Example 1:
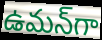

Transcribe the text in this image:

ఉమన్‌గా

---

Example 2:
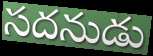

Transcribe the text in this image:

సదనుడు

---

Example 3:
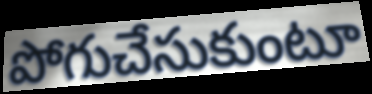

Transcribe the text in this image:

పోగుచేసుకుంటూ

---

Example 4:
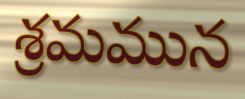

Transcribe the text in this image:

శ్రమమున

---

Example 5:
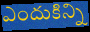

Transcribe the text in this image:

ఎందుకిన్ని